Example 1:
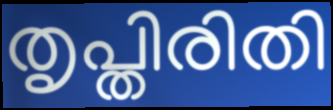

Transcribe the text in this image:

തൃപ്തിരിതി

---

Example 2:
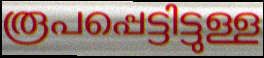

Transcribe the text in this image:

രൂപപ്പെട്ടിട്ടുള്ള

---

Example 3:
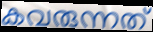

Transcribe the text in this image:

കവരുന്നത്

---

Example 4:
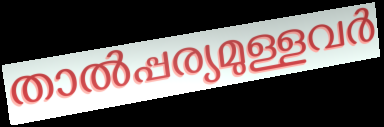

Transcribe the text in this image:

താൽപ്പര്യമുള്ളവർ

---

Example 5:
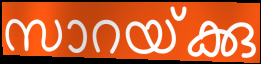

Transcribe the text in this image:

സാറയ്‌ക്കു